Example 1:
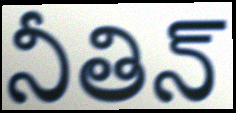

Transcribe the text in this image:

నీతిన్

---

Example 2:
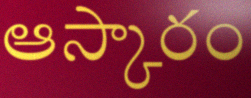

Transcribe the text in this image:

ఆస్కారం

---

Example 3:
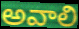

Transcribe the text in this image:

అవాలి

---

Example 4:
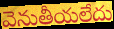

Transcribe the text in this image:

వెనుతీయలేదు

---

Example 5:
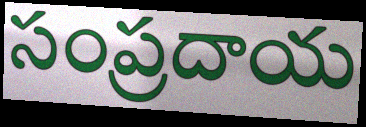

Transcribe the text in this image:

సంప్రదాయ